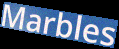
Marbles